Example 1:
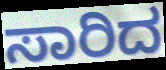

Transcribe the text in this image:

ಸಾರಿದ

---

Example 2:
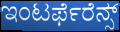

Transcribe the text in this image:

ಇಂಟರ್ಫೆರೆನ್ಸ್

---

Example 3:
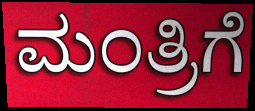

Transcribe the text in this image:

ಮಂತ್ರಿಗೆ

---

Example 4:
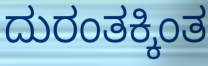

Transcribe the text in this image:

ದುರಂತಕ್ಕಿಂತ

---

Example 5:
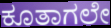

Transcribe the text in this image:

ಕೂತಾಗಲೇ